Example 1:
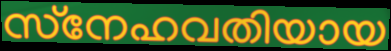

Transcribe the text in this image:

സ്‌നേഹവതിയായ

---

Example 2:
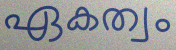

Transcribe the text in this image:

ഏകത്വം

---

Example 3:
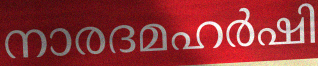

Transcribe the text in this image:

നാരദമഹർഷി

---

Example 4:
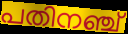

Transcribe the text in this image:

പതിനഞ്ച്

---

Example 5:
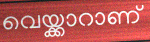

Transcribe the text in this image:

വെയ്ക്കാറാണ്